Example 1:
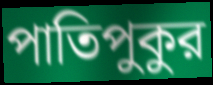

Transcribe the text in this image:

পাতিপুকুর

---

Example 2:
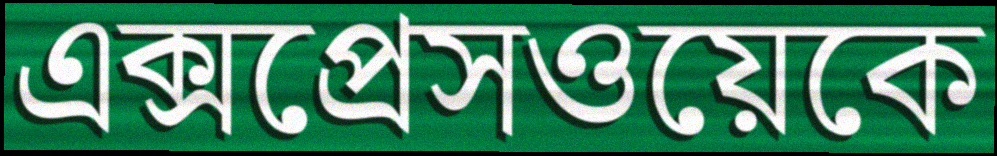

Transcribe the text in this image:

এক্সপ্রেসওয়েকে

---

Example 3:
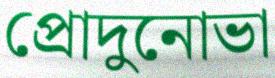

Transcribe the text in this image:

প্রোদুনোভা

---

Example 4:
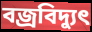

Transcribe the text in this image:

বজ্রবিদ্যুৎ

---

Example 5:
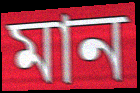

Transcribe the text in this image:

মান